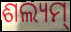
ଶଲ୍ୟମ୍